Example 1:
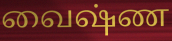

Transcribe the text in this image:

வைஷ்ண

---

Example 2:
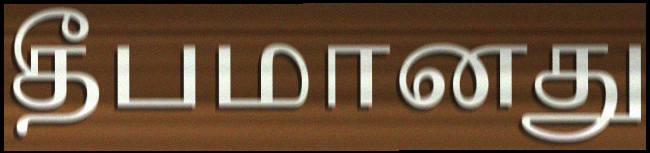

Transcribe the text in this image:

தீபமானது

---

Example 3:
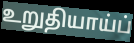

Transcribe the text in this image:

உறுதியாய்ப்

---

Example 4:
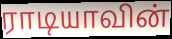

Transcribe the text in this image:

ராடியாவின்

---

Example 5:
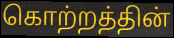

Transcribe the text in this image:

கொற்றத்தின்